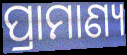
ପ୍ରାମାଣ୍ୟ